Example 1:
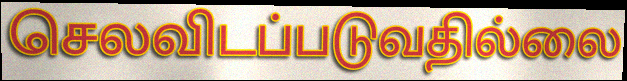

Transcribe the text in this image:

செலவிடப்படுவதில்லை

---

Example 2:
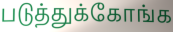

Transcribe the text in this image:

படுத்துக்கோங்க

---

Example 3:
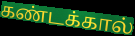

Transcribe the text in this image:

கண்டக்கால்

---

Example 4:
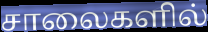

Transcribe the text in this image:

சாலைகளில்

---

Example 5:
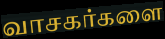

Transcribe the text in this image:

வாசகர்களை